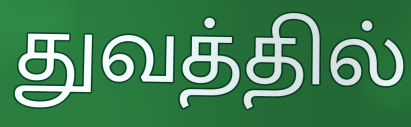
துவத்தில்